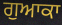
ਗੁਆਕਾ